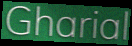
Gharial